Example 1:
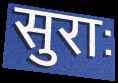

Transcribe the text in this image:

सुराः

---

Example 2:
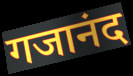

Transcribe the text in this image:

गजानंद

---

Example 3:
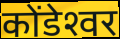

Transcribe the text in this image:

कोंडेश्वर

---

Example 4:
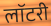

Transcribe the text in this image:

लॉटरी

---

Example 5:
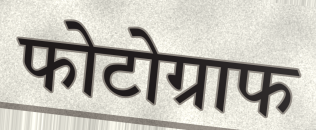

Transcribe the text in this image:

फोटोग्राफ